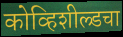
कोव्हिशील्डचा